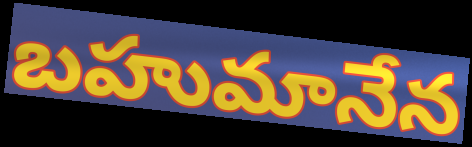
బహుమానేన